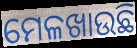
ମେଳଖାଉଛି